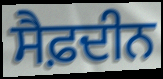
ਸੈਫ਼ਦੀਨ